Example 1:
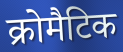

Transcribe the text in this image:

क्रोमैटिक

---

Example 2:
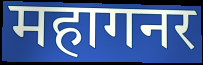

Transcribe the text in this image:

महागनर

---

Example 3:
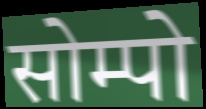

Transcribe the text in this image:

सोम्पो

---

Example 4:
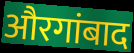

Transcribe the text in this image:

औरगांबाद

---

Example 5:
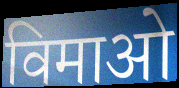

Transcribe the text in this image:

विमाओ